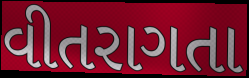
વીતરાગતા